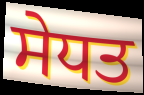
ਸੇਧਤ